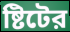
ষ্টিটের